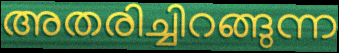
അതരിച്ചിറങ്ങുന്ന